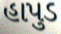
હાપુડ